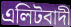
এলিটবাদী